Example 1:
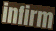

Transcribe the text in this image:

infirm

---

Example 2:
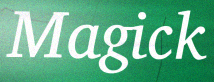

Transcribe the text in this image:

Magick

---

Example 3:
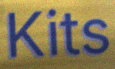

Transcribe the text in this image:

Kits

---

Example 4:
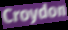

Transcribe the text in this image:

Croydon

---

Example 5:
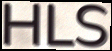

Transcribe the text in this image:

HLS